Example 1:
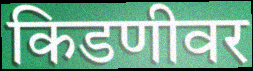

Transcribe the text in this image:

किडणीवर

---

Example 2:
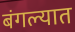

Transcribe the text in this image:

बंगल्यात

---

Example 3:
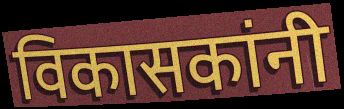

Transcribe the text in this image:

विकासकांनी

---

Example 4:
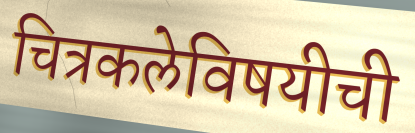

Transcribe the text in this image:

चित्रकलेविषयीची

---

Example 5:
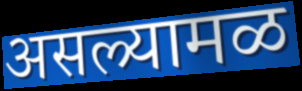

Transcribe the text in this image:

असल्यामळ